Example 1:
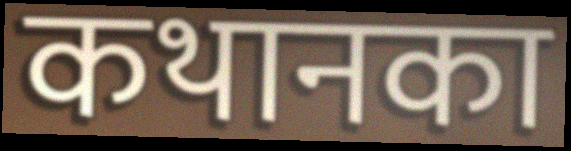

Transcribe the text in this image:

कथानका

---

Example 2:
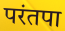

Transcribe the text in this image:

परंतपा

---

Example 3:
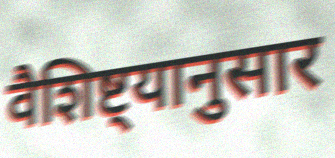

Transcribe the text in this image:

वैशिष्ट्यानुसार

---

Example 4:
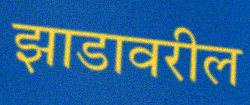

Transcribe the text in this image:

झाडावरील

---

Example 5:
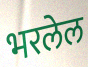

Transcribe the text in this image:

भरलेल